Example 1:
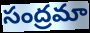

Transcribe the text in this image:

సంద్రమా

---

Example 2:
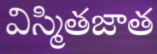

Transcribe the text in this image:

విస్మితజాత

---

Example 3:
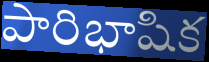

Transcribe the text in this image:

పారిభాషిక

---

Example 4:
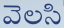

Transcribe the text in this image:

వెలసి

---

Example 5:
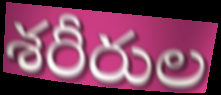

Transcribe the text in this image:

శరీరుల